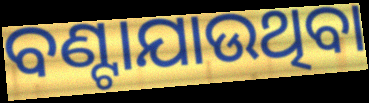
ବଣ୍ଟାଯାଉଥିବା